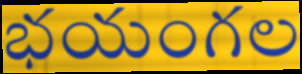
భయంగల